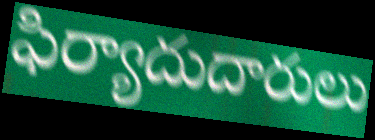
ఫిర్యాదుదారులు